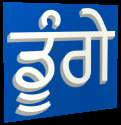
ਡੂੰਗੇ